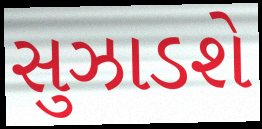
સુઝાડશે